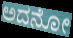
ಅದನೋ